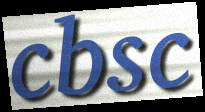
cbsc